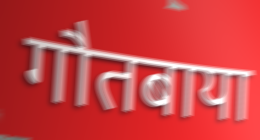
गौतबाया